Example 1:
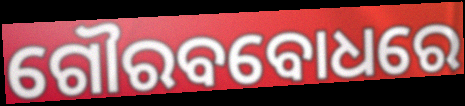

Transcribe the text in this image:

ଗୌରବବୋଧରେ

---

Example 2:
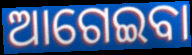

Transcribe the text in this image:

ଆଗେଇବା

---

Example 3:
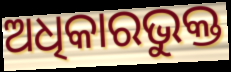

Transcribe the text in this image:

ଅଧିକାରଭୁକ୍ତ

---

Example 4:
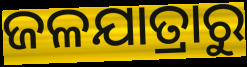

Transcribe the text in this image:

ଜଳଯାତ୍ରାରୁ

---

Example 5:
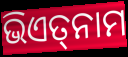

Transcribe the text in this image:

ଭିଏତ୍‌ନାମ